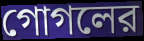
গোগলের